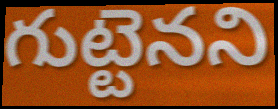
గుట్టెనని